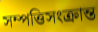
সম্পত্তিসংক্রান্ত